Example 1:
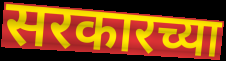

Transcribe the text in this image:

सरकारच्या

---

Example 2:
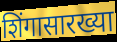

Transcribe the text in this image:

शिंगासारख्या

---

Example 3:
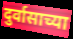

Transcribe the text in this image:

दुर्वासाच्या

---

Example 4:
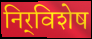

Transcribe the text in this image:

निर्विशेष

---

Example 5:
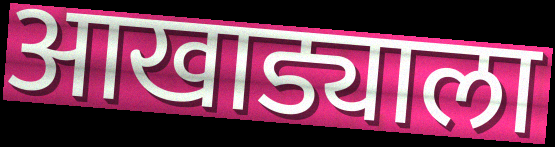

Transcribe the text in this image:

आखाड्याला